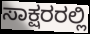
ಸಾಕ್ಷರರಲ್ಲಿ